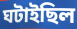
ঘটাইছিল